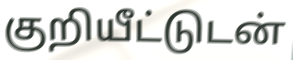
குறியீட்டுடன்